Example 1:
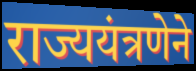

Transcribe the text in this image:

राज्ययंत्रणेने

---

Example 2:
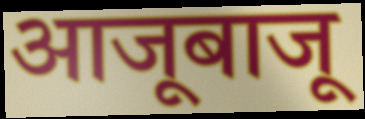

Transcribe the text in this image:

आजूबाजू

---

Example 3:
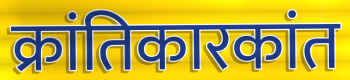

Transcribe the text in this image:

क्रांतिकारकांत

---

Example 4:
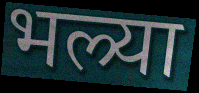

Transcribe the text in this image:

भल्या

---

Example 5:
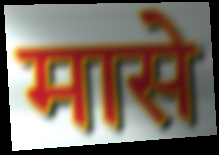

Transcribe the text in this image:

मासे